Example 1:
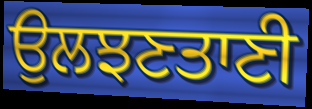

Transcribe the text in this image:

ਉਲਝਣਤਾਣੀ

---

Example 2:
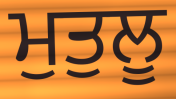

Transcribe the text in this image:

ਮੁਤੁਲੂ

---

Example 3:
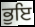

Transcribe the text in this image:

ਭੁਇ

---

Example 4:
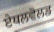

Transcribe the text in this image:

ਏਥਲਵੋਲਡ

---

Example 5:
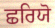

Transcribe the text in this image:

ਛਰਿਯੋ